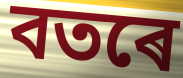
বতৰে